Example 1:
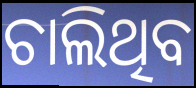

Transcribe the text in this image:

ଚାଲିଥିବ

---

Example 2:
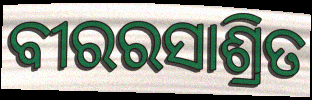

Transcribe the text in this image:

ବୀରରସାଶ୍ରିତ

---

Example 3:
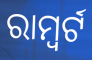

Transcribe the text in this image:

ରାମ୍ବର୍ଟ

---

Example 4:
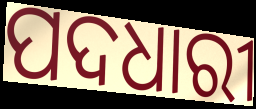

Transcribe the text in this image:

ପଦଧାରୀ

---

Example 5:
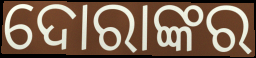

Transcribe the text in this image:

ଦୋରାଙ୍କର